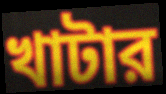
খাটার